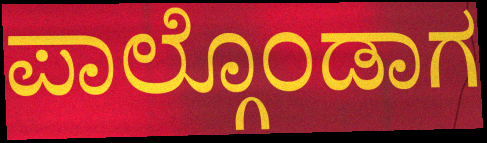
ಪಾಲ್ಗೊಂಡಾಗ